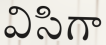
విసిగా